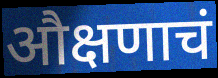
औक्षणाचं